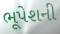
ભૂપેશની